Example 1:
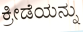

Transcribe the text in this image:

ಕ್ರೀಡೆಯನ್ನು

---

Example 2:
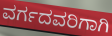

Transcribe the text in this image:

ವರ್ಗದವರಿಗಾಗಿ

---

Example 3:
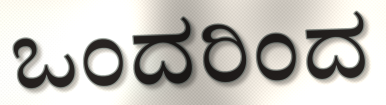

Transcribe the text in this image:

ಒಂದರಿಂದ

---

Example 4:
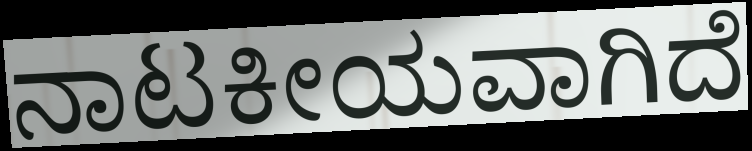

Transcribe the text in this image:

ನಾಟಕೀಯವಾಗಿದೆ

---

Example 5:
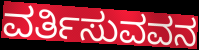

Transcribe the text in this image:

ವರ್ತಿಸುವವನ